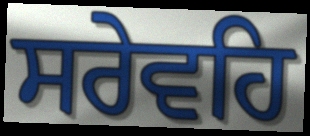
ਸਰੇਵਹਿ